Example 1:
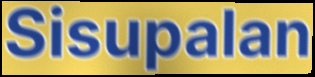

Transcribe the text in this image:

Sisupalan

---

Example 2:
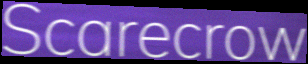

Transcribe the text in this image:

Scarecrow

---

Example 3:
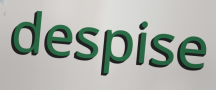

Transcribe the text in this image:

despise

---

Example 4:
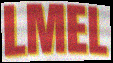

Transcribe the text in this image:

LMEL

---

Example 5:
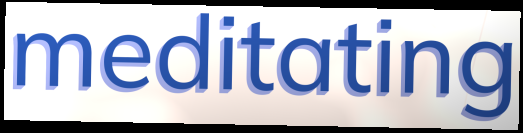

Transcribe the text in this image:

meditating